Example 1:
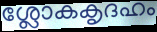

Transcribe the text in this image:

ശ്ലോകകൃദഹം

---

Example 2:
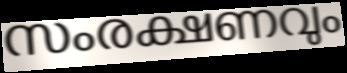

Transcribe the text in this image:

സംരക്ഷണവും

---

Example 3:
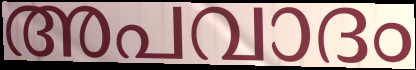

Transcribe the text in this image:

അപവാദം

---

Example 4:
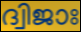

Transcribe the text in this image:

ദ്വിജാഃ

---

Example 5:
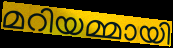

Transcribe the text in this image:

മറിയമ്മായി